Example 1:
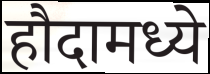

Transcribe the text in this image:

हौदामध्ये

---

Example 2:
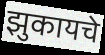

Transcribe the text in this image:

झुकायचे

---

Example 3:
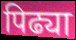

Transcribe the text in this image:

पिढ्या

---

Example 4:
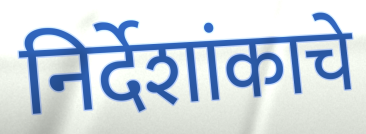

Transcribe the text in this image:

निर्देशांकाचे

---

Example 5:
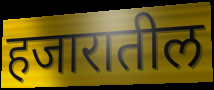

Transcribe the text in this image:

हजारातील